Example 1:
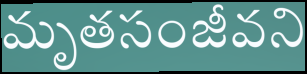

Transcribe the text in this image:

మృతసంజీవని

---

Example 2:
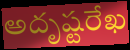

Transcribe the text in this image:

అదృష్టరేఖ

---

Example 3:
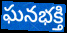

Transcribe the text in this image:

ఘనభక్తి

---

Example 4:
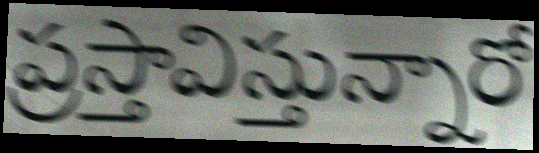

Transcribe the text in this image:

ప్రస్తావిస్తున్నారో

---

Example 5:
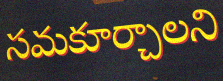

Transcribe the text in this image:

సమకూర్చాలని